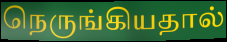
நெருங்கியதால்